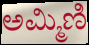
ಅಮ್ಮಿಣಿ